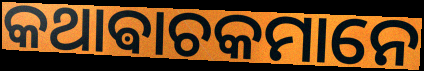
କଥାଵାଚକମାନେ